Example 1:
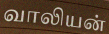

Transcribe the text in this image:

வாலியன்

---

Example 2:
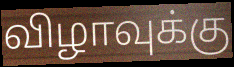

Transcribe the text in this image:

விழாவுக்கு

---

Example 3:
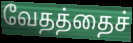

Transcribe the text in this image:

வேதத்தைச்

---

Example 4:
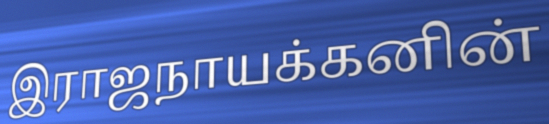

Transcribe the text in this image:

இராஜநாயக்கனின்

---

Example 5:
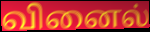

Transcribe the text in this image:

வினைல்